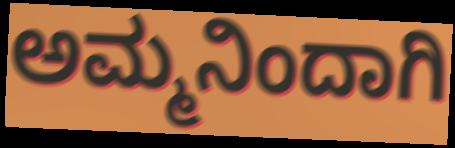
ಅಮ್ಮನಿಂದಾಗಿ